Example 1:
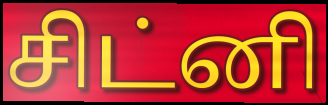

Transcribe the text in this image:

சிட்னி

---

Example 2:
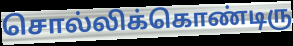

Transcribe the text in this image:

சொல்லிக்கொண்டிரு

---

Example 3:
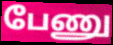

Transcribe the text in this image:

பேணு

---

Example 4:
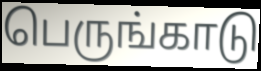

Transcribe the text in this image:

பெருங்காடு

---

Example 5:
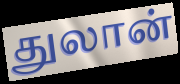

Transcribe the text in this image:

துலான்